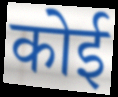
कोई